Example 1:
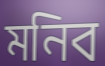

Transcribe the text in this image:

মনিব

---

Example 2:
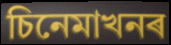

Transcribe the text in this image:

চিনেমাখনৰ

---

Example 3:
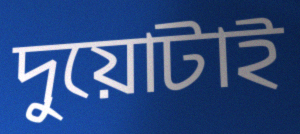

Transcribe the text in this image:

দুয়োটাই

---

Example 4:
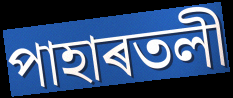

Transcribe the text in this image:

পাহাৰতলী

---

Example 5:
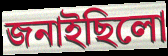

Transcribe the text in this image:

জনাইছিলো